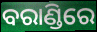
ବରାଣ୍ଡିରେ